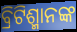
ବ୍ରିଟିଶ୍ମାନଙ୍କ